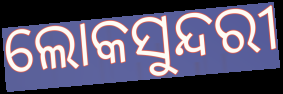
ଲୋକସୁନ୍ଦରୀ